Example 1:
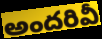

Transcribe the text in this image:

అందరివీ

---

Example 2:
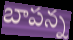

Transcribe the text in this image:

బాపన్న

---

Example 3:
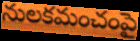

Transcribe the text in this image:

నులకమంచంపై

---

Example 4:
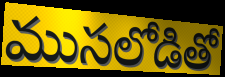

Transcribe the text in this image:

ముసలోడితో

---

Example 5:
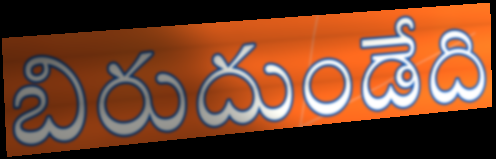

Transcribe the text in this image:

బిరుదుండేది